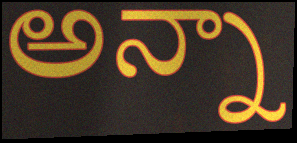
అన్నా